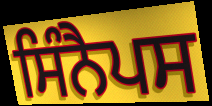
ਸਿੰਨੈਪਸ